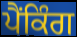
ਪੈਂਕਿੰਗ